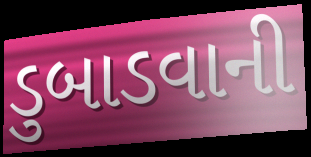
ડુબાડવાની